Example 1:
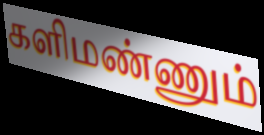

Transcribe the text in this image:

களிமண்ணும்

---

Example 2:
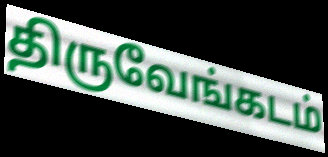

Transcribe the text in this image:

திருவேங்கடம்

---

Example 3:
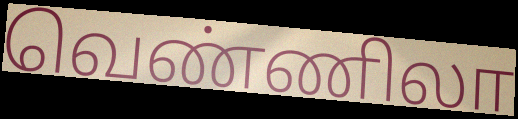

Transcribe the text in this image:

வெண்ணிலா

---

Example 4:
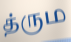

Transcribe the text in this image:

த்ரும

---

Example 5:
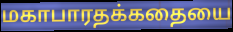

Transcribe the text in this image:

மகாபாரதக்கதையை